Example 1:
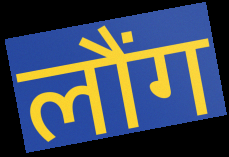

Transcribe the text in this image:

लौंग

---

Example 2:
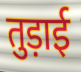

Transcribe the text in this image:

तुड़ाई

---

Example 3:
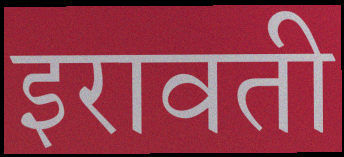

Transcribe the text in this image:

इरावती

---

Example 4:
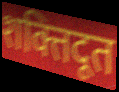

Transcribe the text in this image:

शक्तिदूत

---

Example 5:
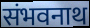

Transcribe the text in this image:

संभवनाथ